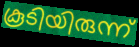
കൂടിയിരുന്ന്